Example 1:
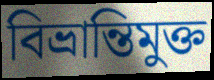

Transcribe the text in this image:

বিভ্রান্তিমুক্ত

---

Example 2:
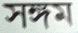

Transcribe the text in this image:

সঙ্গম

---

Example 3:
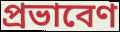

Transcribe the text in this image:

প্রভাবেণ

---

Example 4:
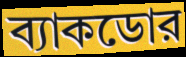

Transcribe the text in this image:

ব্যাকডোর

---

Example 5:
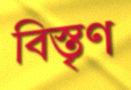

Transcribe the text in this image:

বিস্তৃণ